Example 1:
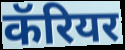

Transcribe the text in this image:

कॅरियर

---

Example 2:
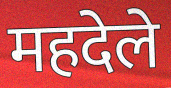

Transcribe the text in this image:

महदेले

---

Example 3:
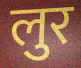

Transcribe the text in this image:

लुर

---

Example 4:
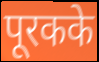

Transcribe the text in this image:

पूरकके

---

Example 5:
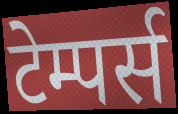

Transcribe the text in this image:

टेम्पर्स